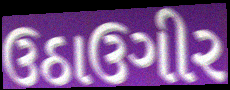
ઉઠાઉગીર